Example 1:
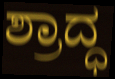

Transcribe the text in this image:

ಶ್ರಾದ್ಧ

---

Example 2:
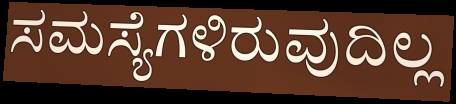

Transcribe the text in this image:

ಸಮಸ್ಯೆಗಳಿರುವುದಿಲ್ಲ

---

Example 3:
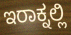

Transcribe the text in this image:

ಇರಾಕ್ನಲ್ಲಿ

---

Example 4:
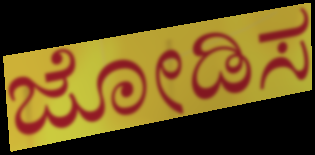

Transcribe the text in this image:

ಜೋಡಿಸ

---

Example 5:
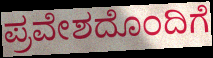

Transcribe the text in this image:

ಪ್ರವೇಶದೊಂದಿಗೆ